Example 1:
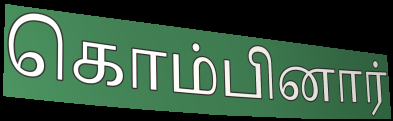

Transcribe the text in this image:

கொம்பினார்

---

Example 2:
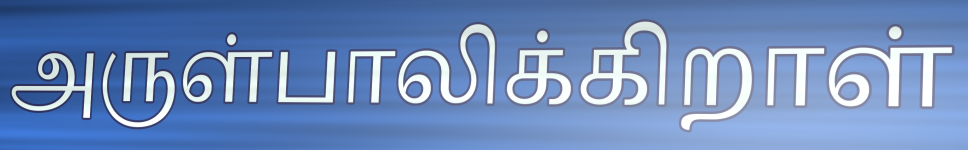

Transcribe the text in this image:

அருள்பாலிக்கிறாள்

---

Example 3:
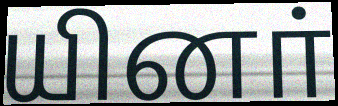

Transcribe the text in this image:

யினர்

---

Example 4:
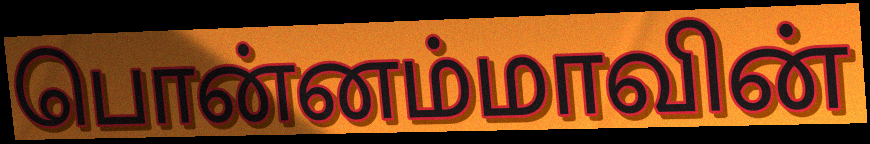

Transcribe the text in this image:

பொன்னம்மாவின்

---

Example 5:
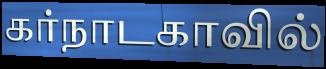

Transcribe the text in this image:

கர்நாடகாவில்